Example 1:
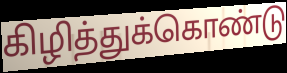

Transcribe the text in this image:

கிழித்துக்கொண்டு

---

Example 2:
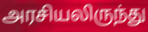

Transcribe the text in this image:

அரசியலிருந்து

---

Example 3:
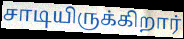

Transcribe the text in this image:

சாடியிருக்கிறார்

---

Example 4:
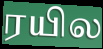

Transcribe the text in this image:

ரயில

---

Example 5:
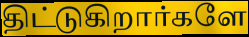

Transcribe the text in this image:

திட்டுகிறார்களே